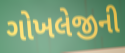
ગોખલેજીની